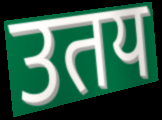
उतय